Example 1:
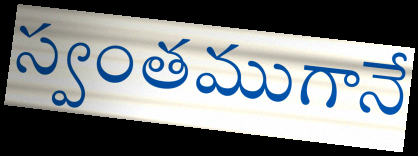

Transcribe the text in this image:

స్వంతముగానే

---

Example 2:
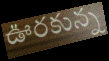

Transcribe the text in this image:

ఊరకున్న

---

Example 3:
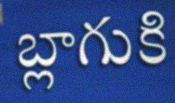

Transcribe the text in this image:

బ్లాగుకి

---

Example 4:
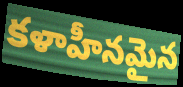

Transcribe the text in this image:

కళాహీనమైన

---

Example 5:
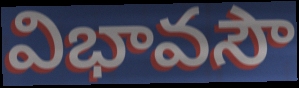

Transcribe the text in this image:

విభావసౌ